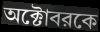
অক্টোবরকে